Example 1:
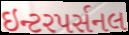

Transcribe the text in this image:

ઇન્ટરપર્સનલ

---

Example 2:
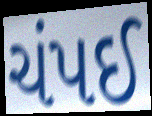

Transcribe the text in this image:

ચંપઈ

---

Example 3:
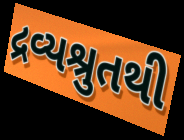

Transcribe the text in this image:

દ્રવ્યશ્રુતથી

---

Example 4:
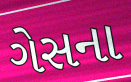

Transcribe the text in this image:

ગેસના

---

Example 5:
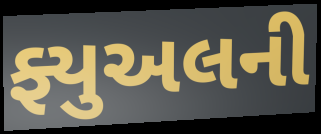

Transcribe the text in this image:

ફ્યુઅલની